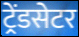
ट्रेंडसेटर